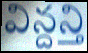
విన్దన్తి